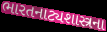
ભારતનાટ્યશાસ્ત્રના